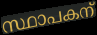
സ്ഥാപകന്